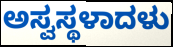
ಅಸ್ವಸ್ಥಳಾದಳು